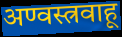
अण्वस्त्रवाहू